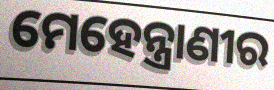
ମେହେନ୍ତ୍ରାଣୀର